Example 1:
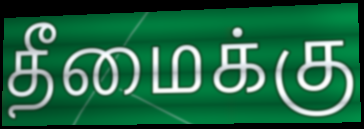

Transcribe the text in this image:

தீமைக்கு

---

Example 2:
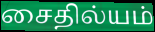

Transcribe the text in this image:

சைதில்யம்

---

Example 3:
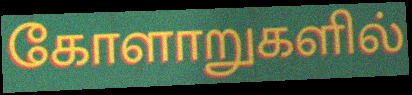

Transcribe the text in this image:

கோளாறுகளில்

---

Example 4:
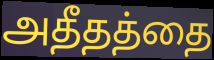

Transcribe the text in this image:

அதீதத்தை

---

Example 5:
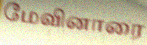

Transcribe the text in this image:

மேவினாரை